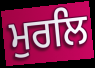
ਮੁਰਲਿ